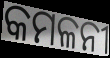
କମଳନୀ